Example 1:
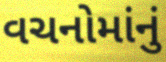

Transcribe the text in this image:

વચનોમાંનું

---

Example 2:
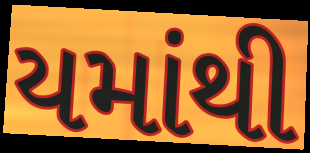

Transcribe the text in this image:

યમાંથી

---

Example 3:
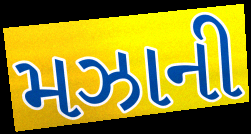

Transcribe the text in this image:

મઝાની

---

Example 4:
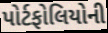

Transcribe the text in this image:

પોર્ટફોલિયોની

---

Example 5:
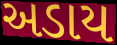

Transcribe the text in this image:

અડાય